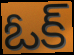
ఓక్